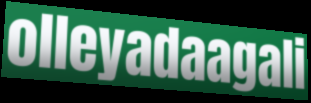
olleyadaagali